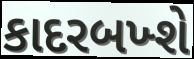
કાદરબખ્શે